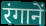
रंगानें